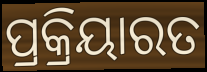
ପ୍ରକ୍ରିୟାରତ